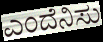
ಎಂದೆನಿಸು